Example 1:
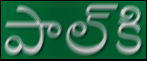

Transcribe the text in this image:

పాల్‌కి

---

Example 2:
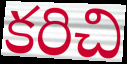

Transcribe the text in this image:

కరిచి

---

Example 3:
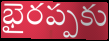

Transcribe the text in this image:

భైరప్పకు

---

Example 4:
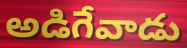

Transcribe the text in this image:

అడిగేవాడు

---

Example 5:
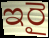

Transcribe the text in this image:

ఇరై